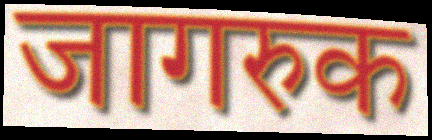
जागरुक